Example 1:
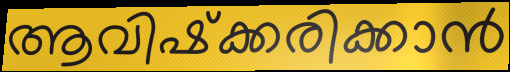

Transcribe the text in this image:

ആവിഷ്‌ക്കരിക്കാൻ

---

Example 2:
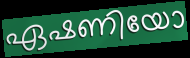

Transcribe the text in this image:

ഏഷണിയോ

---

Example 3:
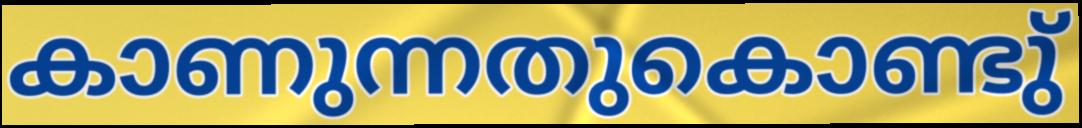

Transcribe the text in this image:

കാണുന്നതുകൊണ്ടു്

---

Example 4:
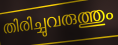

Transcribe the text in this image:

തിരിച്ചുവരുത്തും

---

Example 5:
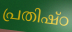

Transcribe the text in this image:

പ്രതിഷ്ഠ